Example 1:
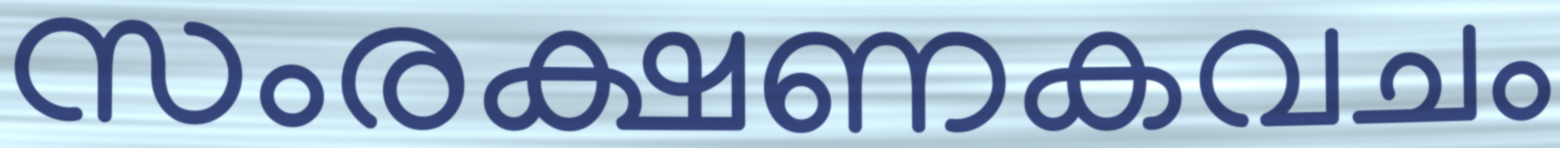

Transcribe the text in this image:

സംരക്ഷണകവചം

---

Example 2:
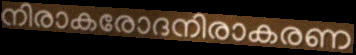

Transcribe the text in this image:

നിരാകരോദനിരാകരണ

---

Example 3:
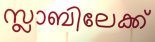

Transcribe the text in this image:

സ്ലാബിലേക്ക്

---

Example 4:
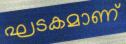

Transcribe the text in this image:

ഘടകമാണ്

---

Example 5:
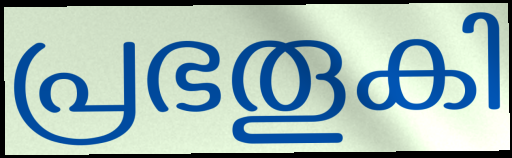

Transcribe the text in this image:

പ്രഭതൂകി